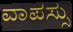
ವಾಪಸ್ಸು